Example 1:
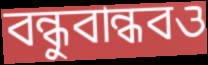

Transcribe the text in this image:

বন্ধুবান্ধবও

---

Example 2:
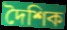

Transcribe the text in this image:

দৈশিক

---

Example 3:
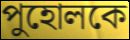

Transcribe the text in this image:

পুহোলকে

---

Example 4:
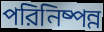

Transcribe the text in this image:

পরিনিষ্পন্ন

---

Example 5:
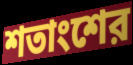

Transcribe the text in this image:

শতাংশের